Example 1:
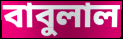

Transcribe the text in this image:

বাবুলাল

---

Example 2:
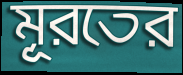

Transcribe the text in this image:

মূরতের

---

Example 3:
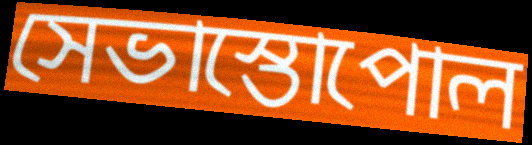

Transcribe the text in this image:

সেভাস্তোপোল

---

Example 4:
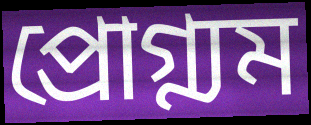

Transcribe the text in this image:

প্রোগ্মম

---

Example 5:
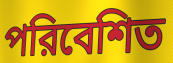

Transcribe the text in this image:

পরিবেশিত